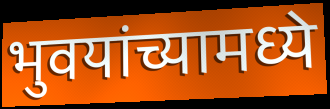
भुवयांच्यामध्ये